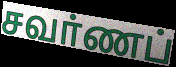
சவர்ணப்